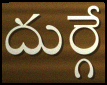
దుర్గే